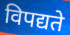
विपद्यते